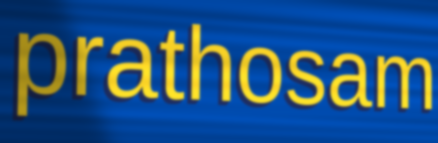
prathosam